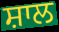
ਸ਼ਾਲ